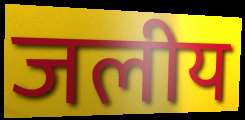
जलीय